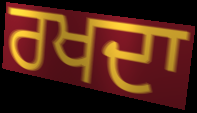
ਰਖਦਾ